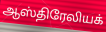
ஆஸ்திரேலியக்